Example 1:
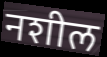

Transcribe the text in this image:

नशील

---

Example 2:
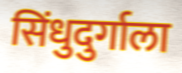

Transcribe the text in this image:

सिंधुदुर्गाला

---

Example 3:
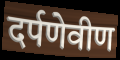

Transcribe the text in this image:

दर्पणेवीण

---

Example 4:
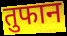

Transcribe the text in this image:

तुफान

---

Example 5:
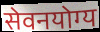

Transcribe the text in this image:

सेवनयोग्य